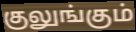
குலுங்கும்